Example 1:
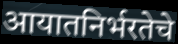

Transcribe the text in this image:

आयातनिर्भरतेचे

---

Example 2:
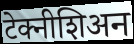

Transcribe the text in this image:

टेक्नीशिअन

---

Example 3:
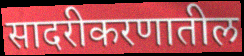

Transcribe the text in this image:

सादरीकरणातील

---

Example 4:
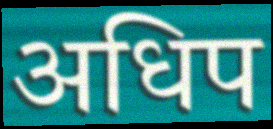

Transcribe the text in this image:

अधिप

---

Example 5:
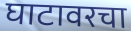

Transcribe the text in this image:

घाटावरचा